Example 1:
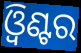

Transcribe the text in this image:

ଓ୍ଵିଣ୍ଟର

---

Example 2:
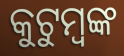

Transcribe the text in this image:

କୁଟୁମ୍ବଙ୍କ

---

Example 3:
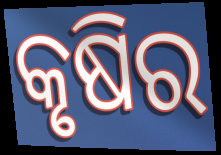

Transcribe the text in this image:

କୃଷିର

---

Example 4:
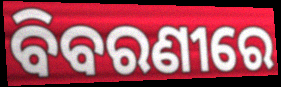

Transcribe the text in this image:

ବିବରଣୀରେ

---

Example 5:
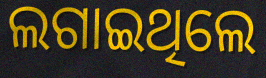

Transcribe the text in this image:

ଲଗାଇଥିଲେ